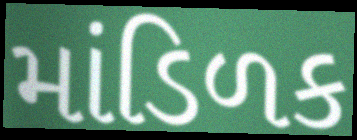
માંડિળક